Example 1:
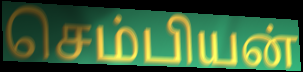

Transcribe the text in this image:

செம்பியன்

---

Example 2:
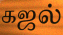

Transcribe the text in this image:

கஜல்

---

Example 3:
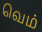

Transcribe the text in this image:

வெம்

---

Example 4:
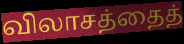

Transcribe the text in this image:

விலாசத்தைத்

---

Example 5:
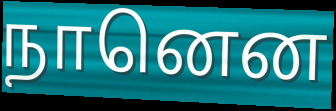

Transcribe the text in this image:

நானென